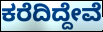
ಕರೆದಿದ್ದೇವೆ